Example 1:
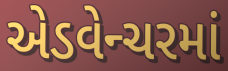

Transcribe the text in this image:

એડવેન્ચરમાં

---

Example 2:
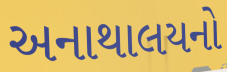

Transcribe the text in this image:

અનાથાલયનો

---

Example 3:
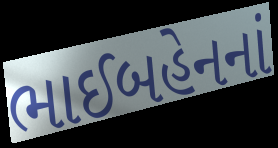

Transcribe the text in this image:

ભાઈબહેનનાં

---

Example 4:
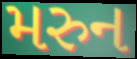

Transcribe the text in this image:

મરુન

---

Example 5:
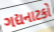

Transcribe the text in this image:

ગદ્યનાટકો